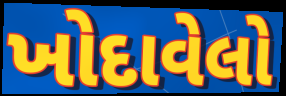
ખોદાવેલો